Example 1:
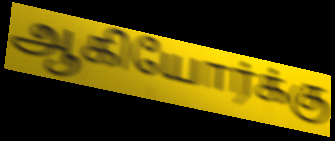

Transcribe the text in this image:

ஆகியோர்க்கு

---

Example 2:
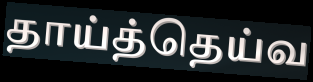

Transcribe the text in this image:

தாய்த்தெய்வ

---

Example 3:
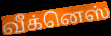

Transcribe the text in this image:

வீக்னெஸ்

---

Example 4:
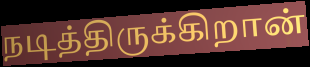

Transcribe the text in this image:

நடித்திருக்கிறான்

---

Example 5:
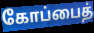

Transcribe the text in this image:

கோப்பைத்